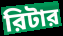
রিটার